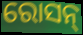
ରୋସନ୍